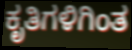
ಕೃತಿಗಳಿಗಿಂತ